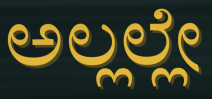
ಅಲ್ಲಲ್ಲೇ